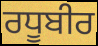
ਰਧੂਬੀਰ